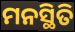
ମନସ୍ଥିତି